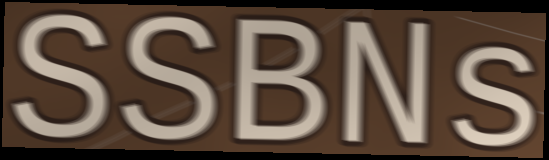
SSBNs